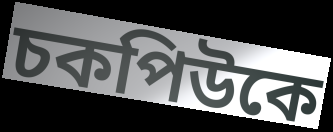
চকপিউকে